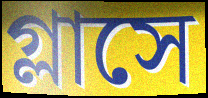
গ্লাসে